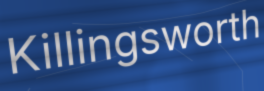
Killingsworth